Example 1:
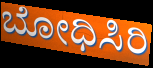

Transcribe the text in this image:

ಬೋಧಿಸಿರಿ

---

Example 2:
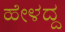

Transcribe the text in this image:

ಹೇಳದ್ದ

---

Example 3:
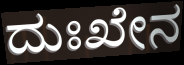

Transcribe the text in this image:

ದುಃಖೇನ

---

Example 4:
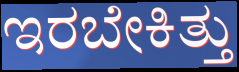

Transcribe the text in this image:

ಇರಬೇಕಿತ್ತು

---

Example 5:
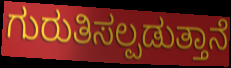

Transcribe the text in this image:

ಗುರುತಿಸಲ್ಪಡುತ್ತಾನೆ